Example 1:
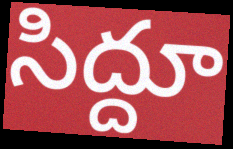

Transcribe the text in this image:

సిద్దూ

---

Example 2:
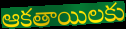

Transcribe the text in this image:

ఆకతాయిలకు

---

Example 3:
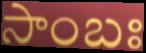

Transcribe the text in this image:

సాంబః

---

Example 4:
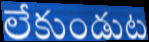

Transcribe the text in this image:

లేకుండుట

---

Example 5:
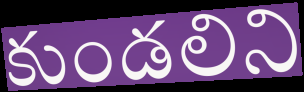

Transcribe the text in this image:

కుండలిని